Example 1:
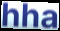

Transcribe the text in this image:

hha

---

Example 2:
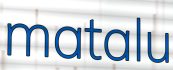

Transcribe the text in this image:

matalu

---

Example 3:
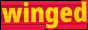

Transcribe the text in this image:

winged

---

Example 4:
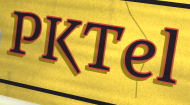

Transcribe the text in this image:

PKTel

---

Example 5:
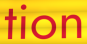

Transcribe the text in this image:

tion